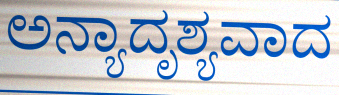
ಅನ್ಯಾದೃಶ್ಯವಾದ